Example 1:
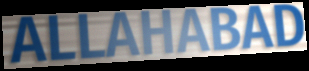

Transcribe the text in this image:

ALLAHABAD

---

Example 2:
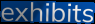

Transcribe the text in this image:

exhibits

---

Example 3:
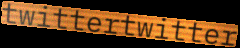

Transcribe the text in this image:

twittertwitter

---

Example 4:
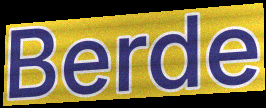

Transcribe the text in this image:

Berde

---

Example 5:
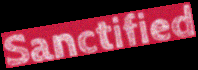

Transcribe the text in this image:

Sanctified